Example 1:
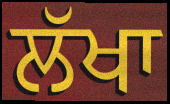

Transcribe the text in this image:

ਲੱਖਾ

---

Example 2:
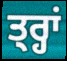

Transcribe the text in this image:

ਤ੍ਰ੍ਹਾਂ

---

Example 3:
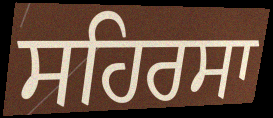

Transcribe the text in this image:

ਸਹਿਰਸਾ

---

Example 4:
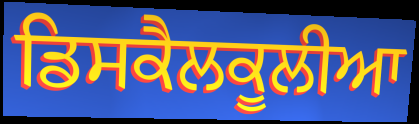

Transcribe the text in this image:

ਡਿਸਕੈਲਕੂਲੀਆ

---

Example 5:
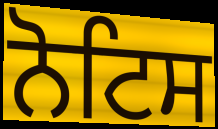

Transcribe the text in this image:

ਨੋਟਿਸ